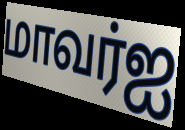
மாவர்ஐ